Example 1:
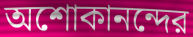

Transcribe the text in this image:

অশোকানন্দের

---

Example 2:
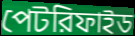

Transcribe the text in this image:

পেটরিফাইড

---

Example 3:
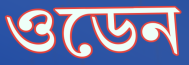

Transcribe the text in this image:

ওডেন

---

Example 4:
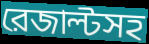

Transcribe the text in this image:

রেজাল্টসহ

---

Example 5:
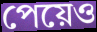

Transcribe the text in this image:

পেয়েও